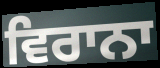
ਵਿਰਾਨਾ